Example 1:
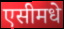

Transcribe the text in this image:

एसीमधे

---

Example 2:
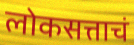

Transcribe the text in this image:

लोकसत्ताचं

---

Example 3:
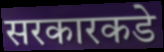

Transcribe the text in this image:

सरकारकडे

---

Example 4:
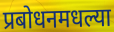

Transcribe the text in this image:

प्रबोधनमधल्या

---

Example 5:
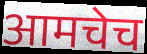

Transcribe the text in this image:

आमचेच